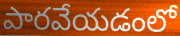
పారవేయడంలో